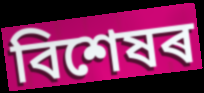
বিশেষৰ